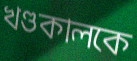
খণ্ডকালকে